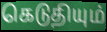
கெடுதியும்